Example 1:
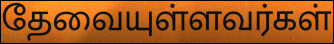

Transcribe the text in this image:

தேவையுள்ளவர்கள்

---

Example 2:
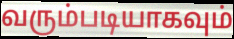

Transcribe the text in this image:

வரும்படியாகவும்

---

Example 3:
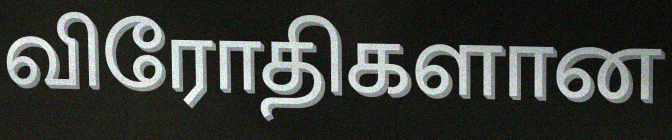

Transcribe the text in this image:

விரோதிகளான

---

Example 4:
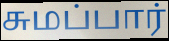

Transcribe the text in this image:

சுமப்பார்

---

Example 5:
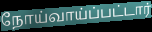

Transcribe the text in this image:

நோய்வாய்ப்பட்டார்